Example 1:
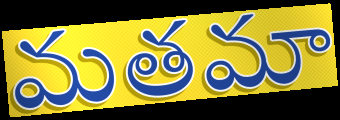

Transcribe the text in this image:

మతమా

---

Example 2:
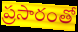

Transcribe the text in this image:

ప్రసారంతో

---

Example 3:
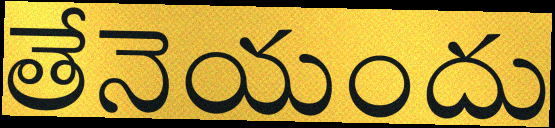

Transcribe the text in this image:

తేనెయందు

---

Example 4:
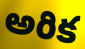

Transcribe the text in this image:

అరిక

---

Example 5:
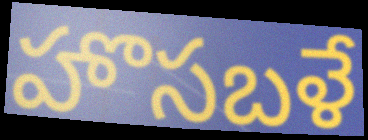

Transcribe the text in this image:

హొసబళే